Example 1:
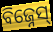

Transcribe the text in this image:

ବିଜ୍ନେସ୍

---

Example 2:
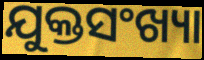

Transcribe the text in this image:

ଯୁକ୍ତସଂଖ୍ୟା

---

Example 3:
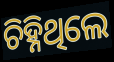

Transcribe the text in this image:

ଚିହ୍ନିଥିଲେ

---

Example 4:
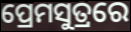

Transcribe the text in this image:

ପ୍ରେମସୁତ୍ରରେ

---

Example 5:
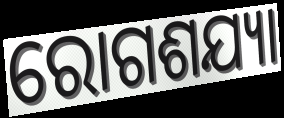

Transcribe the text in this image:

ରୋଗଶଯ୍ୟା